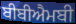
ਬੀਬੀਐਮਬੀ